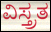
ವಿಸ್ತ್ರತ